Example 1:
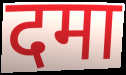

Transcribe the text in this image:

दमा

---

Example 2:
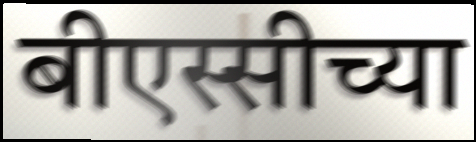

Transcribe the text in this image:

बीएस्सीच्या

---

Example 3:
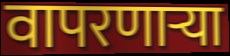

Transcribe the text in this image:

वापरणाऱ्या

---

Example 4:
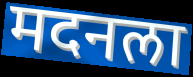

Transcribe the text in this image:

मदनला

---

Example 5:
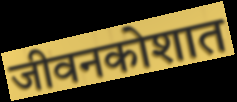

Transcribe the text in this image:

जीवनकोशात